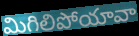
మిగిలిపోయావా